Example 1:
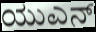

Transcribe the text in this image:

ಯುಎನ್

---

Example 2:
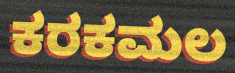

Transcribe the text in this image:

ಕರಕಮಲ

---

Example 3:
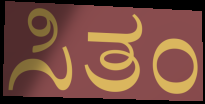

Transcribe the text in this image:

ಸಿತಂ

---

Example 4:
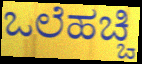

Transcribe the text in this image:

ಒಲೆಹಚ್ಚಿ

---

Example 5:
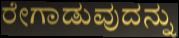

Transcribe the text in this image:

ರೇಗಾಡುವುದನ್ನು